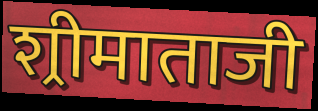
श्रीमाताजी